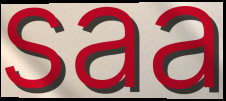
saa